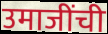
उमाजींची